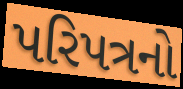
પરિપત્રનો